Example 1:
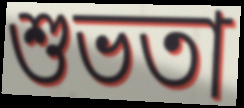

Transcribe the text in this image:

শুভতা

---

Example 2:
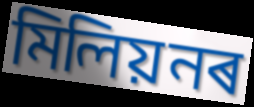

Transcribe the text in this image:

মিলিয়নৰ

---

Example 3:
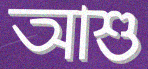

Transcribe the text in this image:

আশু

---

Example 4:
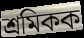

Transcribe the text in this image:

শ্ৰমিকক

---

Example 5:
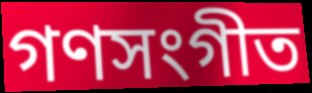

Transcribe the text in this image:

গণসংগীত